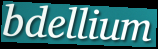
bdellium